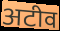
अटीव